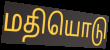
மதியொடு